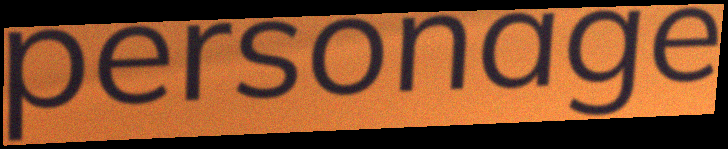
personage